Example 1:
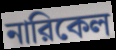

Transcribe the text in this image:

নারিকেল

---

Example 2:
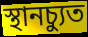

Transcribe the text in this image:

স্থানচ্যুত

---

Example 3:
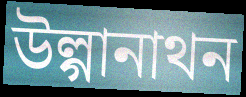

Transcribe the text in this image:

উল্গানাথন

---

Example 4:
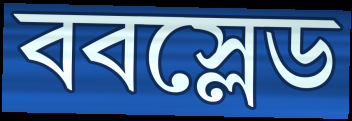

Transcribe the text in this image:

ববস্লেড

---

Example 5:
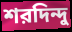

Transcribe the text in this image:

শরদিন্দু